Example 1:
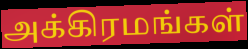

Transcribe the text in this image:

அக்கிரமங்கள்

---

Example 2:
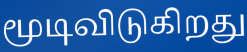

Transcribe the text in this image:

மூடிவிடுகிறது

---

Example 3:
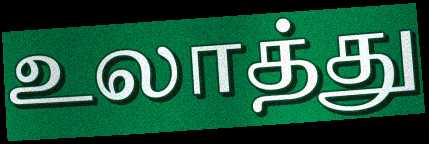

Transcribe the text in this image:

உலாத்து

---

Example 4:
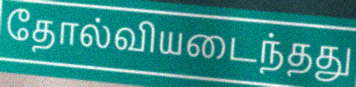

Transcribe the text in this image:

தோல்வியடைந்தது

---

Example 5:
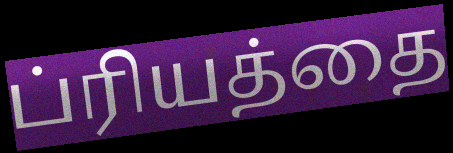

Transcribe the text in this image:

ப்ரியத்தை